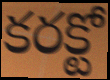
కరక్టో